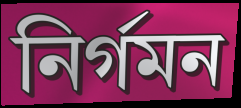
নির্গমন